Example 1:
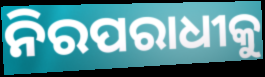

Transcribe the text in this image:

ନିରପରାଧୀକୁ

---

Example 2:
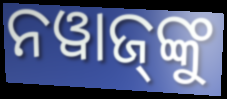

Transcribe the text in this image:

ନୱାଜ୍‍ଙ୍କୁ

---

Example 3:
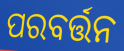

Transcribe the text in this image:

ପରବର୍ତ୍ତନ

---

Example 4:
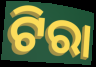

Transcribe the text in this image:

ଟିରା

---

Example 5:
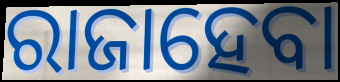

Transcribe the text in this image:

ରାଜାହେବା